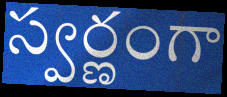
స్వర్ణంగా